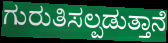
ಗುರುತಿಸಲ್ಪಡುತ್ತಾನೆ